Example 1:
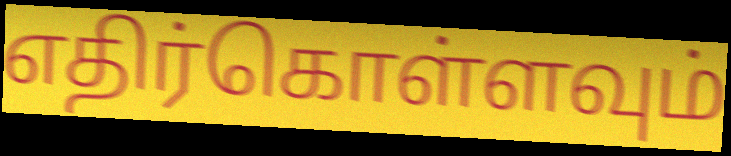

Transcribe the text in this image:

எதிர்கொள்ளவும்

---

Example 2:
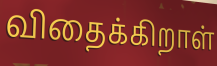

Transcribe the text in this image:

விதைக்கிறாள்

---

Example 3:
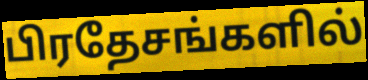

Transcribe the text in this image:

பிரதேசங்களில்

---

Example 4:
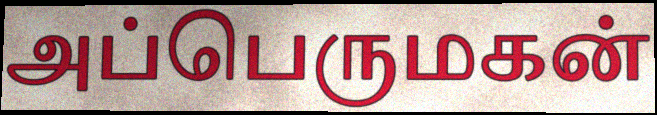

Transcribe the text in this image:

அப்பெருமகன்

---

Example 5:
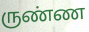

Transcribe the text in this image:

ருண்ண